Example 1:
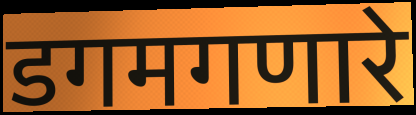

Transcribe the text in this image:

डगमगणारे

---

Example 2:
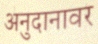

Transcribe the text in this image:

अनुदानावर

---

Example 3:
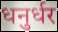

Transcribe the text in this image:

धनुर्धर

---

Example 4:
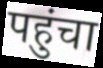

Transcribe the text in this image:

पहुंचा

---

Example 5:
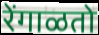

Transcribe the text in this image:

रेंगाळतो